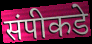
संपीकडे